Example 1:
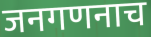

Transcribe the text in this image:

जनगणनाच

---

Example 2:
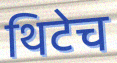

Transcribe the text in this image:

थिटेच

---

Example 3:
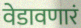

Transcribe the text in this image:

वेडावणारं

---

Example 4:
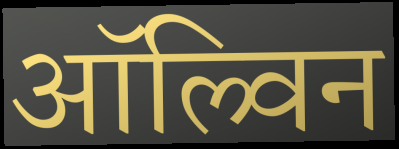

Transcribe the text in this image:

ऑल्विन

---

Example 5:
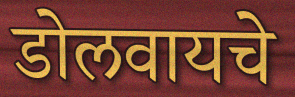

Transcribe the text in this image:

डोलवायचे